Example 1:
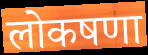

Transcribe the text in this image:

लोकषणा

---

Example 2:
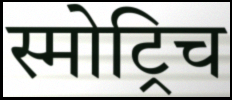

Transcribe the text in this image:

स्मोट्रिच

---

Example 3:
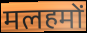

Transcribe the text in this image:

मलहमों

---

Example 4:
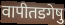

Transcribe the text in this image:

वापीतडगेषु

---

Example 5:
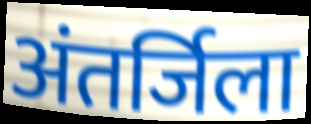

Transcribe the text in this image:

अंतर्जिला